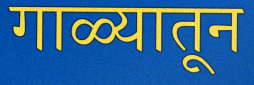
गाळ्यातून